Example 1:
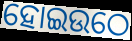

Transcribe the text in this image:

ହୋଇଉଠେ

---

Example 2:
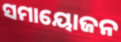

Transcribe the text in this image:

ସମାୟୋଜନ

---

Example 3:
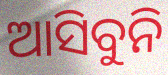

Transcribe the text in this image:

ଆସିବୁନି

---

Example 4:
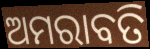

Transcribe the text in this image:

ଅମରାବତି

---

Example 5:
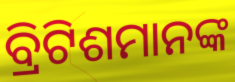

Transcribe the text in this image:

ବ୍ରିଟିଶମାନଙ୍କ